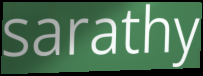
sarathy